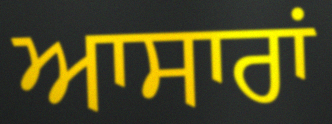
ਆਸਾਰਾਂ